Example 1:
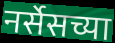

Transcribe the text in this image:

नर्सेसच्या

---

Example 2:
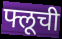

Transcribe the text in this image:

फ्लूची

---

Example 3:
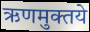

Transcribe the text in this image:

ऋणमुक्तये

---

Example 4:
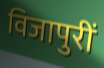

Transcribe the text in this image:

विजापुरीं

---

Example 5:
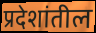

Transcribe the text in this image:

प्रदेशांतील